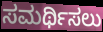
ಸಮರ್ಥಿಸಲು